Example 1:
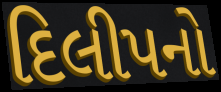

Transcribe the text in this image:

દિલીપનો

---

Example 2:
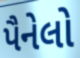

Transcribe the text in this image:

પૈનેલો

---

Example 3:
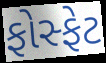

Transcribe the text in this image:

ફોસ્ફેટ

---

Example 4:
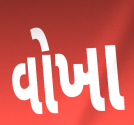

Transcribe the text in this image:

વોખા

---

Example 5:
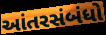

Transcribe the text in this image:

આંતરસંબંધો